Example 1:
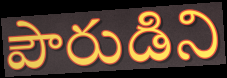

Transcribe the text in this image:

పౌరుడిని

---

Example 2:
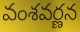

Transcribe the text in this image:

వంశవర్ణన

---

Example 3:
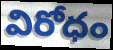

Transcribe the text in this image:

విరోధం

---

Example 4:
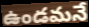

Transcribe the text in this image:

ఉండమనే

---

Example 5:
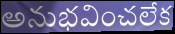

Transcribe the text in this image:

అనుభవించలేక